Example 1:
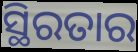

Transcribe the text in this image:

ସ୍ଥିରତାର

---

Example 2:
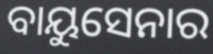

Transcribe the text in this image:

ବାୟୁସେନାର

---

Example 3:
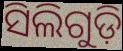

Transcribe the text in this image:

ସିଲିଗୁଡ଼ି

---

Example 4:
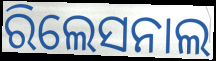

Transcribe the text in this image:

ରିଲେସନାଲ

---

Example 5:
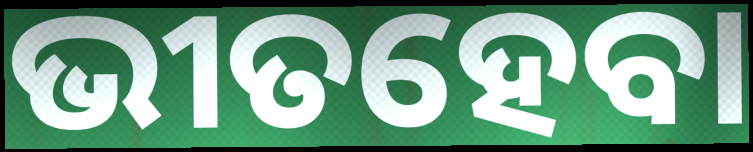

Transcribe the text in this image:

ଭୀତହେବା